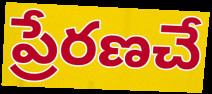
ప్రేరణచే